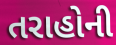
તરાહોની